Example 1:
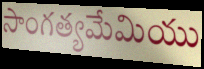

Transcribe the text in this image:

సాంగత్యమేమియు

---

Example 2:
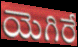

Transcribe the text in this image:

యెగిరే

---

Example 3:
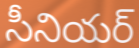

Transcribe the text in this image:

సీనియర్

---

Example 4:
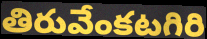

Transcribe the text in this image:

తిరువేంకటగిరి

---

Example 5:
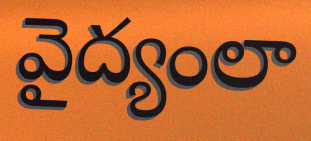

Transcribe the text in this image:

వైద్యంలా